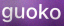
guoko